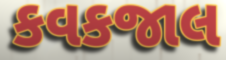
કવકજાલ